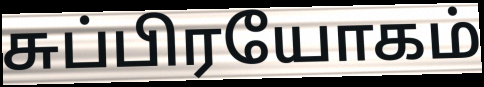
சுப்பிரயோகம்